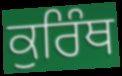
ਕੁਰਿੰਥ